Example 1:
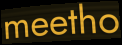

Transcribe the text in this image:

meetho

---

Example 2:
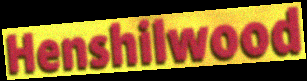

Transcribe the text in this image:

Henshilwood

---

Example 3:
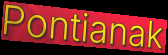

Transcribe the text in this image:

Pontianak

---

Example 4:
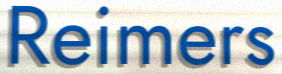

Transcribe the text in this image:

Reimers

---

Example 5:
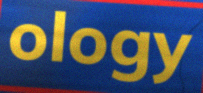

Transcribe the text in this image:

ology